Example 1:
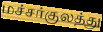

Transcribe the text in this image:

மச்சர்குலத்து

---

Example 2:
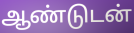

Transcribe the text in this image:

ஆண்டுடன்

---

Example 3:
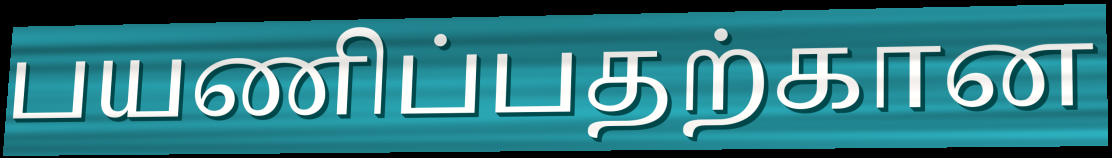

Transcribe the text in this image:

பயணிப்பதற்கான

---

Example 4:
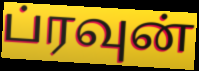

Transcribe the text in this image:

ப்ரவுன்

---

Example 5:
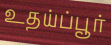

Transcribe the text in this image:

உதய்ப்பூர்